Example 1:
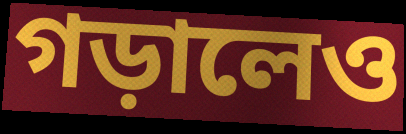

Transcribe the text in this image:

গড়ালেও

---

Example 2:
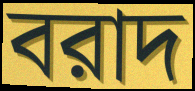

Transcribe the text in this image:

বরাদ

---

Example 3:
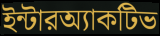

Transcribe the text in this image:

ইন্টারঅ্যাকটিভ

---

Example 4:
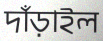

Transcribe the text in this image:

দাঁড়াইল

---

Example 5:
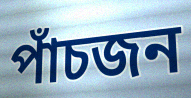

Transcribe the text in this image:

পাঁচজন